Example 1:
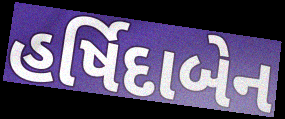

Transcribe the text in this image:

હર્ષિદાબેન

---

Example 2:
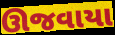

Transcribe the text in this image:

ઊજવાયા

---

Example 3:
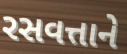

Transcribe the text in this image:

રસવત્તાને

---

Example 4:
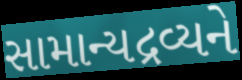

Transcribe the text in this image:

સામાન્યદ્રવ્યને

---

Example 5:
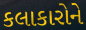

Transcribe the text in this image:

કલાકારોને